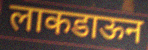
लाकडाऊन